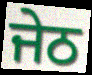
ਜੇਠ